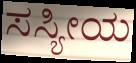
ಸಸ್ಯೀಯ